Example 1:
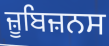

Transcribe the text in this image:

ਜ਼ੂਬਿਜ਼ਨਸ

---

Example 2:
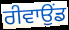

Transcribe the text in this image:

ਰੀਵਾਉਂਡ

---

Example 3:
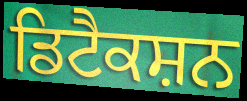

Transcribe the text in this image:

ਡਿਟੈਕਸ਼ਨ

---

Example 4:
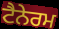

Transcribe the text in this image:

ਟੈਨੇਰਮ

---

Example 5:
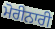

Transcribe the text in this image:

ਮੋਰੀਨਾਰੀ